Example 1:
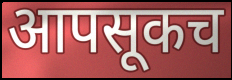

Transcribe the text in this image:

आपसूकच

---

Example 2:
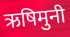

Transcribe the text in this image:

ऋषिमुनी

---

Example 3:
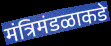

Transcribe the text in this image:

मंत्रिमंडळाकडे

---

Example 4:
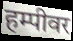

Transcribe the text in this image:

हम्पीवर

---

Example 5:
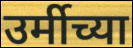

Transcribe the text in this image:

उर्मीच्या